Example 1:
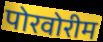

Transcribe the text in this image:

पोरवोरीम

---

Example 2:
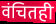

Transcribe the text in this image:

वंचितही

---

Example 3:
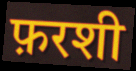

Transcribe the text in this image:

फ़रशी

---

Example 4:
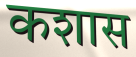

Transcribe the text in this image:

कशास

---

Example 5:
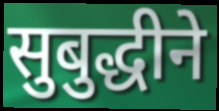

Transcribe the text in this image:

सुबुद्धीने